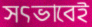
সৎভাবেই